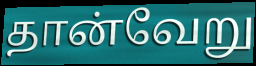
தான்வேறு